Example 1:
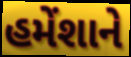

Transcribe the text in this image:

હમેંશાને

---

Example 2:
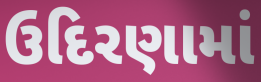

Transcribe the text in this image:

ઉદિરણામાં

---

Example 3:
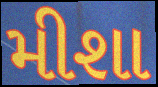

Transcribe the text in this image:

મીશા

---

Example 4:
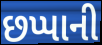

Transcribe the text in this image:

છપ્પાની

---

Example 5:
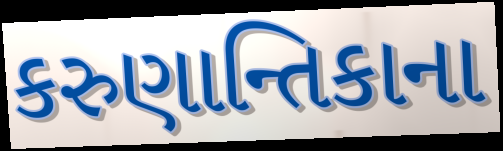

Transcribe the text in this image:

કરુણાન્તિકાના